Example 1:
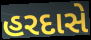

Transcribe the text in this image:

હરદાસે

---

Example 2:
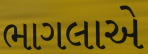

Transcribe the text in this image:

ભાગલાએ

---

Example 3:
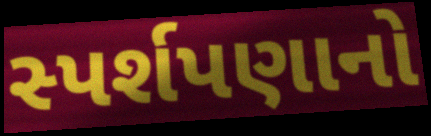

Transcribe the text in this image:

સ્પર્શપણાનો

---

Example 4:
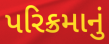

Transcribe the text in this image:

પરિક્રમાનું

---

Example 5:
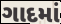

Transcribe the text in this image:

ગાદમાં